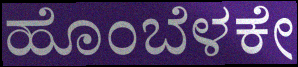
ಹೊಂಬೆಳಕೇ